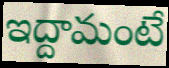
ఇద్దామంటే